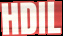
HDIL